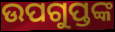
ଉପଗୁପ୍ତଙ୍କ